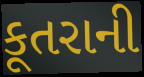
કૂતરાની